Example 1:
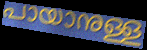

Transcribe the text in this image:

പായാനുള്ള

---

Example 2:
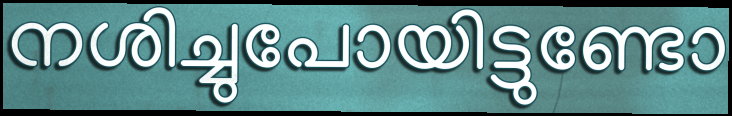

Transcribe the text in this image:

നശിച്ചുപോയിട്ടുണ്ടോ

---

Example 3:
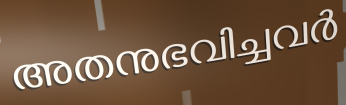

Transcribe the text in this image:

അതനുഭവിച്ചവർ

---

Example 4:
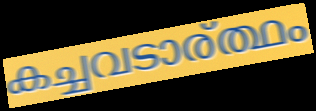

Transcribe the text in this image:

കച്ചവടാര്ത്ഥം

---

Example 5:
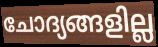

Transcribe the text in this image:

ചോദ്യങ്ങളില്ല